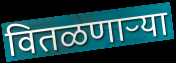
वितळणाऱ्या